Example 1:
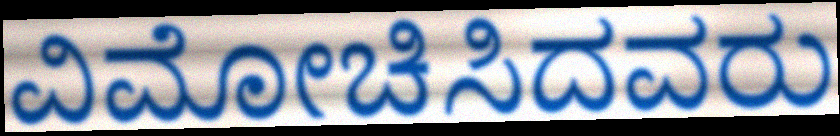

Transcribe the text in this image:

ವಿಮೋಚಿಸಿದವರು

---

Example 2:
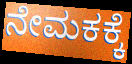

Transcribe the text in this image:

ನೇಮಕಕ್ಕೆ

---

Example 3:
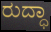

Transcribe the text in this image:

ರುದ್ಧಾ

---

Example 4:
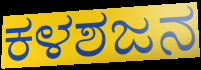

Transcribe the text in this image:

ಕಳಶಜನ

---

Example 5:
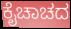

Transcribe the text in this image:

ಕೈಚಾಚದ